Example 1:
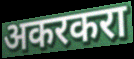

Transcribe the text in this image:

अकरकरा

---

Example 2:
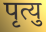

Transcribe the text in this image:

पृत्यु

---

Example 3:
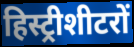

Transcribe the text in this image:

हिस्ट्रीशीटरों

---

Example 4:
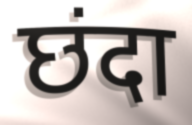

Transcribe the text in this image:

छंदा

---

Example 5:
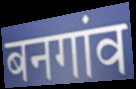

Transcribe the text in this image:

बनगांव